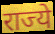
राज्ये